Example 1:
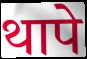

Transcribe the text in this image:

थापे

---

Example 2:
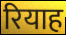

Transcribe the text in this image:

रियाह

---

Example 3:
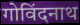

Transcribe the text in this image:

गोविंदनाथ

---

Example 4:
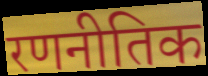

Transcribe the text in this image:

रणनीतिक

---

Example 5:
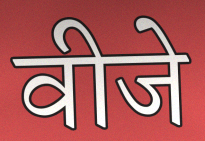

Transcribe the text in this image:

वीजे